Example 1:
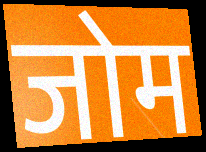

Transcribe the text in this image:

जोम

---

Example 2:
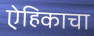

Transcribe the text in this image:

ऐहिकाचा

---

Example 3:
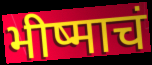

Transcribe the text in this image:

भीष्माचं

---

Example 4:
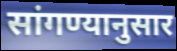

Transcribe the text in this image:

सांगण्यानुसार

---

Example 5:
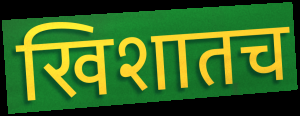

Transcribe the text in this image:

खिशातच